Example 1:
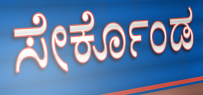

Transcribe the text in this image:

ಸೇರ್ಕೊಂಡ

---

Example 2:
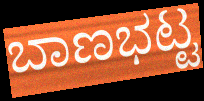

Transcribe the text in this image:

ಬಾಣಭಟ್ಟ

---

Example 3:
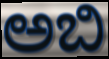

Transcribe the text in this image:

ಅಬಿ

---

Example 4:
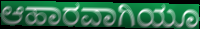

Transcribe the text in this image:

ಆಹಾರವಾಗಿಯೂ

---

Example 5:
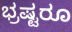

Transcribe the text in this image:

ಭ್ರಷ್ಟರೂ